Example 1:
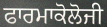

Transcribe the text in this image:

ਫਾਰਮਾਕੋਲੋਜੀ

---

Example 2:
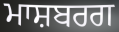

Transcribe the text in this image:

ਮਾਸ਼ਬਰਗ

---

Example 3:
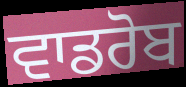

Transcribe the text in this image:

ਵਾਡਰੋਬ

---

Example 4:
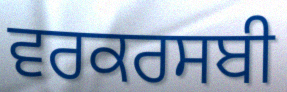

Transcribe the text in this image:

ਵਰਕਰਸਬੀ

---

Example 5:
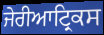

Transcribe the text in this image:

ਜੇਰੀਆਟ੍ਰਿਕਸ